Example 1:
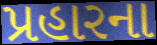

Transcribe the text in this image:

પ્રહારના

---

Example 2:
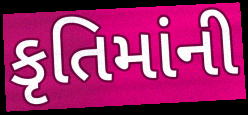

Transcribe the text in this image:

કૃતિમાંની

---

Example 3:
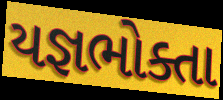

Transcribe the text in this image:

યજ્ઞભોક્તા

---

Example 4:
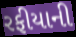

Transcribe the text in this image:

રફીયાની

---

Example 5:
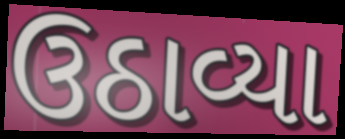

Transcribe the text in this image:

ઉઠાવ્યા